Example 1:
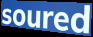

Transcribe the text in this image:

soured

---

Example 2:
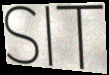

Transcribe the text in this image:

SIT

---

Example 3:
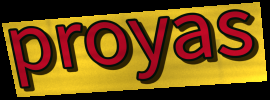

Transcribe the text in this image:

proyas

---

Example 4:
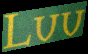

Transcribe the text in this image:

Luu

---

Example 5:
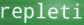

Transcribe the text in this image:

repleti